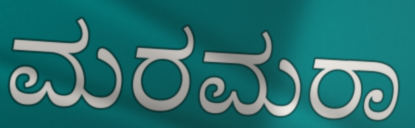
ಮರಮರಾ